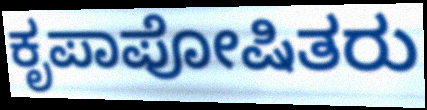
ಕೃಪಾಪೋಷಿತರು